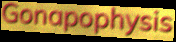
Gonapophysis